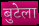
बुटेला